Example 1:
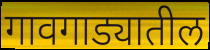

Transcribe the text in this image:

गावगाड्यातील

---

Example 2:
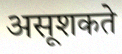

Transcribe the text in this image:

असूशकते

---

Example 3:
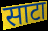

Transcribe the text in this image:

साटा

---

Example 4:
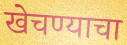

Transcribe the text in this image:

खेचण्याचा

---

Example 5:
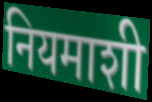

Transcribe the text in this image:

नियमाशी